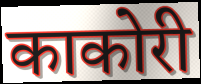
काकोरी